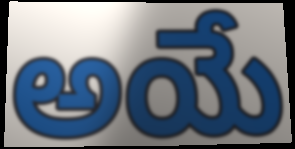
అయే